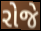
રોજે